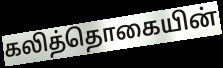
கலித்தொகையின்